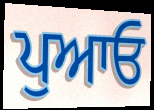
ਪੁਆਓ